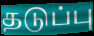
தடுப்பு